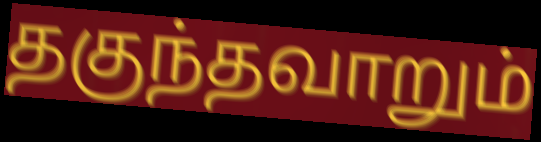
தகுந்தவாறும்